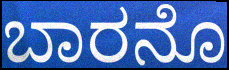
ಬಾರನೊ